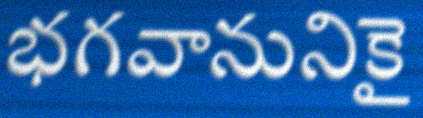
భగవానునికై